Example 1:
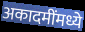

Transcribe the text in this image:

अकादमींमध्ये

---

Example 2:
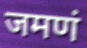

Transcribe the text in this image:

जमणं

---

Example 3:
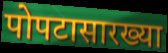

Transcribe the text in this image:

पोपटासारख्या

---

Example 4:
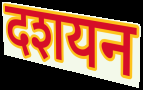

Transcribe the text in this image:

दशयन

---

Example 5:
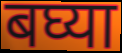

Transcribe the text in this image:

बघ्या